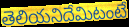
తెలియనిదేమిటంటే